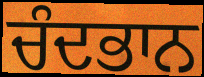
ਚੰਦਭਾਨ